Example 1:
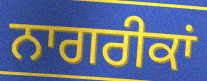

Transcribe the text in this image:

ਨਾਗਰੀਕਾਂ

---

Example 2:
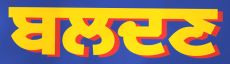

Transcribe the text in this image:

ਬਲਦਣ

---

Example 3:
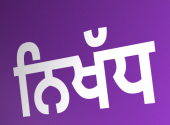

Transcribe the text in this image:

ਨਿਖੱਧ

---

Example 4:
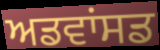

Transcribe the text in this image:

ਅਡਵਾਂਸਡ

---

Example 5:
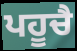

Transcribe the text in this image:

ਪਹੂਚੈ